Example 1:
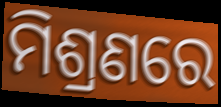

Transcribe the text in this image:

ମିଶ୍ରଣରେ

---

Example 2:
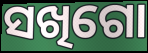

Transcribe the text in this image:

ସଖିଗୋ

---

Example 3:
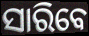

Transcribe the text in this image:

ସାରିବେ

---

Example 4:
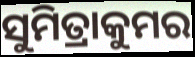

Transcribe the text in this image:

ସୁମିତ୍ରାକୁମର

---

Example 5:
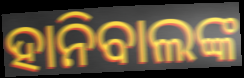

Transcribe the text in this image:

ହାନିବାଲଙ୍କ